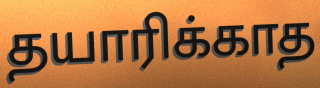
தயாரிக்காத